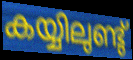
കയ്യിലുണ്ടു്